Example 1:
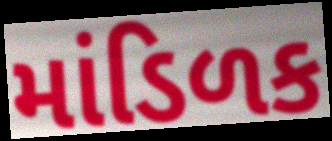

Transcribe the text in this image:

માંડિળક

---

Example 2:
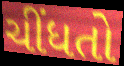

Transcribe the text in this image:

ચીંધતો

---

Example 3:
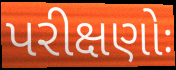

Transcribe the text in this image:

પરીક્ષણોઃ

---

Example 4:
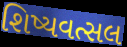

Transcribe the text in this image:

શિષ્યવત્સલ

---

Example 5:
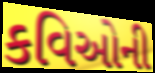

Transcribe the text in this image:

કવિઓની